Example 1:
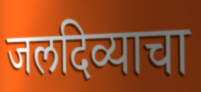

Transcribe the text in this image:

जलदिव्याचा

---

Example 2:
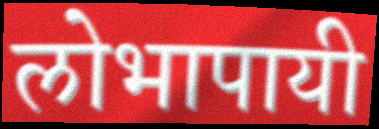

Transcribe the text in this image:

लोभापायी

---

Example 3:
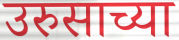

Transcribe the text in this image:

उरुसाच्या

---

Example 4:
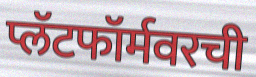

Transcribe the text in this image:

प्लॅटफॉर्मवरची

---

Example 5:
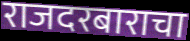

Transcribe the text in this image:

राजदरबाराचा